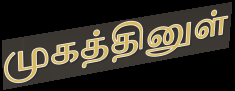
முகத்தினுள்